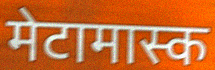
मेटामास्क